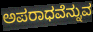
ಅಪರಾಧವೆನ್ನುವ